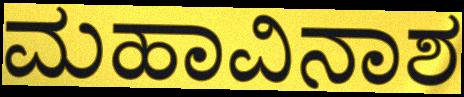
ಮಹಾವಿನಾಶ